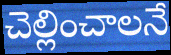
చెల్లించాలనే